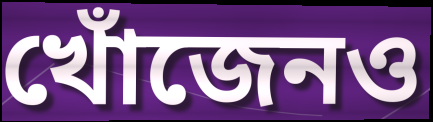
খোঁজেনও